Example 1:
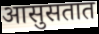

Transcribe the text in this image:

आसुसतात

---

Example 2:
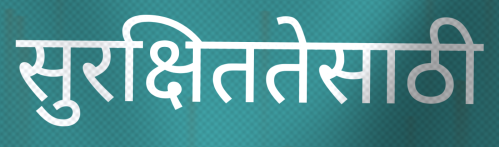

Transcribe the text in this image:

सुरक्षिततेसाठी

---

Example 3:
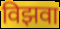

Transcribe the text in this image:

विझवा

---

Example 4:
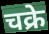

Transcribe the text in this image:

चक्रे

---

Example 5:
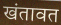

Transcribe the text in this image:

खंतावत